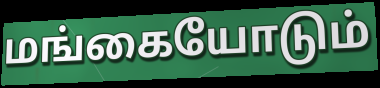
மங்கையோடும்